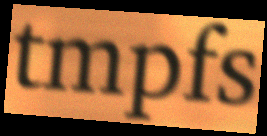
tmpfs